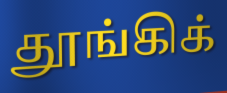
தூங்கிக்